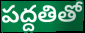
పద్దతితో